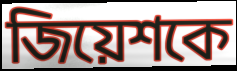
জিয়েশকে